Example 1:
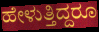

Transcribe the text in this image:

ಹೇಳುತ್ತಿದ್ದರೂ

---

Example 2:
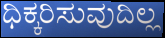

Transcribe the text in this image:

ಧಿಕ್ಕರಿಸುವುದಿಲ್ಲ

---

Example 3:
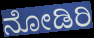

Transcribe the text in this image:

ನೋಡಿರಿ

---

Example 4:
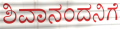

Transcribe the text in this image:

ಶಿವಾನಂದನಿಗೆ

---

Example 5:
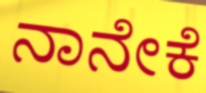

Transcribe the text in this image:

ನಾನೇಕೆ